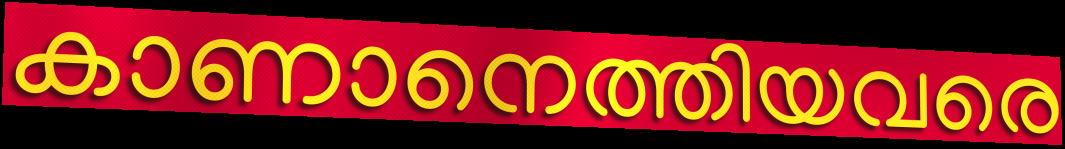
കാണാനെത്തിയവരെ